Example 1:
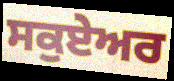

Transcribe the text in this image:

ਸਕੁਏਅਰ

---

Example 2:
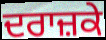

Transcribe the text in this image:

ਦਰਾਜ਼ਕੇ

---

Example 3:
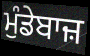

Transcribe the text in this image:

ਮੁੰਡੇਬਾਜ਼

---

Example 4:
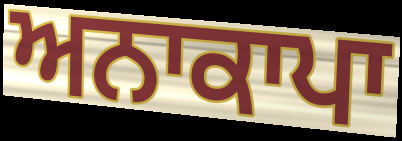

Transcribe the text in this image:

ਅਨਾਕਾਪਾ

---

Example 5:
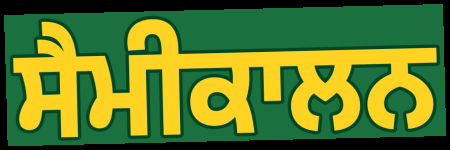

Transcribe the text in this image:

ਸੈਮੀਕਾਲਨ